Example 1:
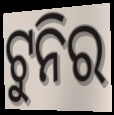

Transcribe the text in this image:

ଟୁନିର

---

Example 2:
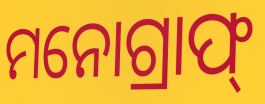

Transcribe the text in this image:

ମନୋଗ୍ରାଫ୍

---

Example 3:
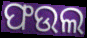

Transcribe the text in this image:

ଫଉଲ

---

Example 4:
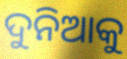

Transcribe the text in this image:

ଦୁନିଆକୁ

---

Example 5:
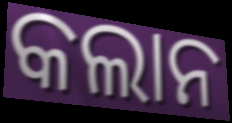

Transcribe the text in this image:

କଲାନ